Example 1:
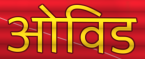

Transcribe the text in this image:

ओविड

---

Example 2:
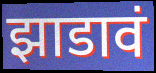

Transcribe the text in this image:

झाडावं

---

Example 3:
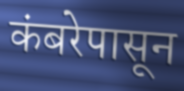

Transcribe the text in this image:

कंबरेपासून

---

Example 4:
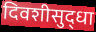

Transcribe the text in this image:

दिवशीसुद्धा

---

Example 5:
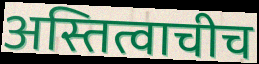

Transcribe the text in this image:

अस्तित्वाचीच